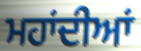
ਮਹਾਂਦੀਆਂ